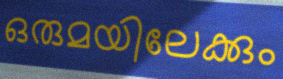
ഒരുമയിലേക്കും